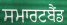
ਸਮਾਰਟਬੈਂਡ